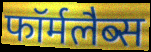
फॉर्मलैब्स